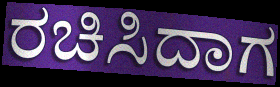
ರಚಿಸಿದಾಗ